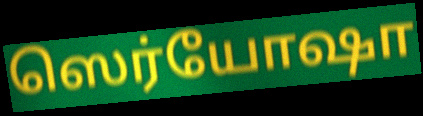
ஸெர்யோஷா